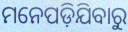
ମନେପଡ଼ିଯିବାରୁ